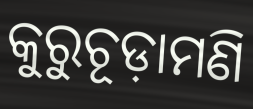
କୁରୁଚୂଡ଼ାମଣି